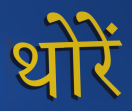
थोरें